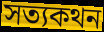
সত্যকথন